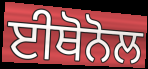
ਈਥੋਨੋਲ